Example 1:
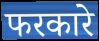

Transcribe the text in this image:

फरकारे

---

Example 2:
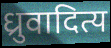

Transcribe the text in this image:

ध्रुवादित्य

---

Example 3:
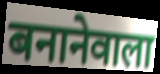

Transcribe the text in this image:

बनानेवाला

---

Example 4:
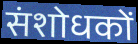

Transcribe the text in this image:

संशोधकों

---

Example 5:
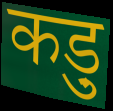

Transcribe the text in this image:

कड़ु